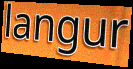
langur